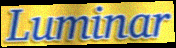
Luminar